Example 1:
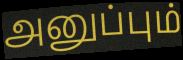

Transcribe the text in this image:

அனுப்பும்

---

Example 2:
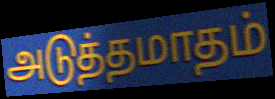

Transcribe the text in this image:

அடுத்தமாதம்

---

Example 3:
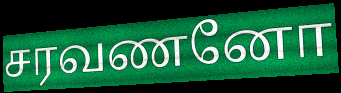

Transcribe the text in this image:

சரவணனோ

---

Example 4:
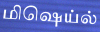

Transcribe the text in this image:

மிஷெய்ல்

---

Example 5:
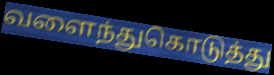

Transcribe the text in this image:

வளைந்துகொடுத்து